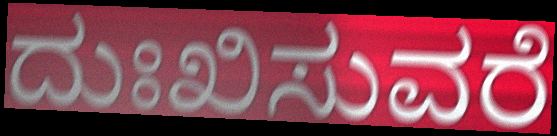
ದುಃಖಿಸುವರೆ